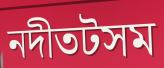
নদীতটসম